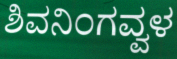
ಶಿವನಿಂಗವ್ವಳ